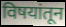
विषयांतून